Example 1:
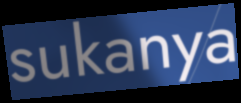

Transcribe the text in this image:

sukanya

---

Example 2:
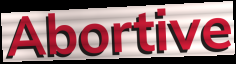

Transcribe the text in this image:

Abortive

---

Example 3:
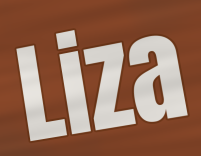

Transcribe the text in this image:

Liza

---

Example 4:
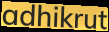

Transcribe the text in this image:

adhikrut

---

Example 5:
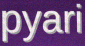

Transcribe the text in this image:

pyari